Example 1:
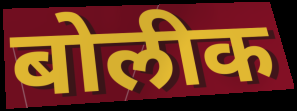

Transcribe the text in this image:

बोलीक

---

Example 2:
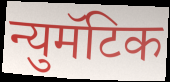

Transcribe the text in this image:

न्युमॅटिक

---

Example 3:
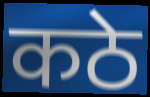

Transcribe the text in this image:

कठे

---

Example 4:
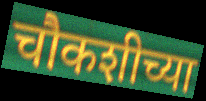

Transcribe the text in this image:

चौकशीच्या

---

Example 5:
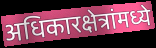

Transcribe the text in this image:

अधिकारक्षेत्रांमध्ये